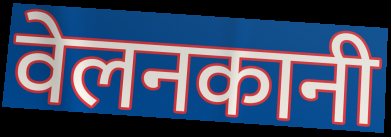
वेलनकानी